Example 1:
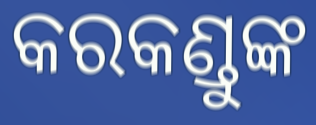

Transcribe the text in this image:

କରକଣ୍ଡୁଙ୍କ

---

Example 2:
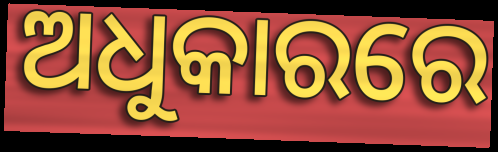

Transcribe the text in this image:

ଅଧୁକାରରେ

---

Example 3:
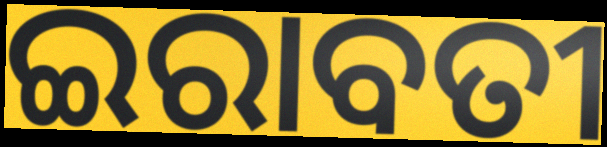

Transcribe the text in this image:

ଇରାବତୀ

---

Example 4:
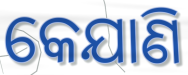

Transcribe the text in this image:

କେଯାଣି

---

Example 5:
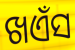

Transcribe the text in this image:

ଖଏଁସ